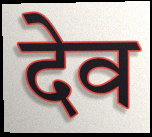
देव